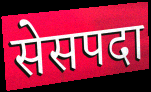
सेसपदा